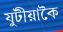
যুটীয়াকৈ